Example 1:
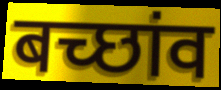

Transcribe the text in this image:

बच्छांव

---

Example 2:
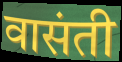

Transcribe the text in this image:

वासंती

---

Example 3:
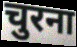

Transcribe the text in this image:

चुरना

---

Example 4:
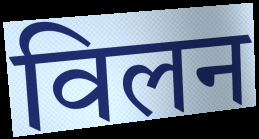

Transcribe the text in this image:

विलन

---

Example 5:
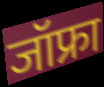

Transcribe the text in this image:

जॉफ्रा